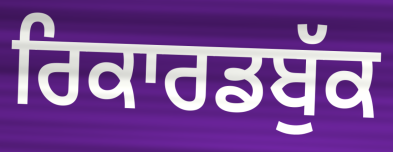
ਰਿਕਾਰਡਬੁੱਕ